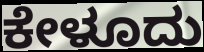
ಕೇಳೂದು